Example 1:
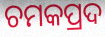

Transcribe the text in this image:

ଚମକପ୍ରଦ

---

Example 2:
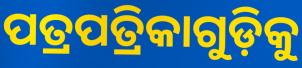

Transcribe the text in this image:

ପତ୍ରପତ୍ରିକାଗୁଡ଼ିକୁ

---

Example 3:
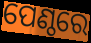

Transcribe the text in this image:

ପେଣ୍ଠରେ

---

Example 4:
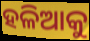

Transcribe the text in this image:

ହଳିଆକୁ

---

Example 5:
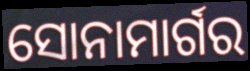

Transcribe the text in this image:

ସୋନାମାର୍ଗର